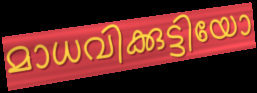
മാധവിക്കുട്ടിയോ